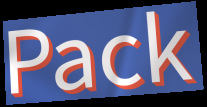
Pack